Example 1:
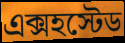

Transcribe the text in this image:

এক্সহস্টেড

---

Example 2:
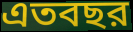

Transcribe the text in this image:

এতবছর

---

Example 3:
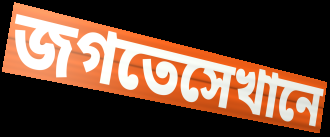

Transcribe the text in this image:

জগতেসেখানে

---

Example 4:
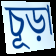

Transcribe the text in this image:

চূড়া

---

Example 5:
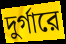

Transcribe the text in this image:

দুর্গারে